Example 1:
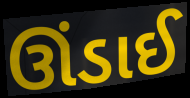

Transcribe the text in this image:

ઊંડાઈ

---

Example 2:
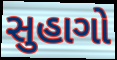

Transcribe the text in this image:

સુહાગો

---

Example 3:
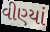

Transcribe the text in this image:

વીણ્યાં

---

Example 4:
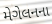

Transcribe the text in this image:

મેગેલનના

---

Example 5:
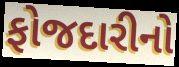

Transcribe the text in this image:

ફોજદારીનો